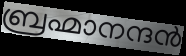
ബ്രഹ്മാനന്ദൻ